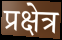
प्रक्षेत्र